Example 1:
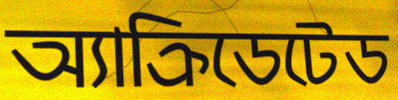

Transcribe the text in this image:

অ্যাক্রিডেটেড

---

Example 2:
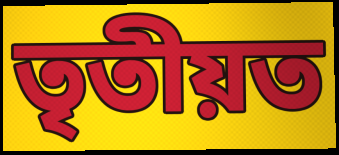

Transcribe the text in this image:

তৃতীয়ত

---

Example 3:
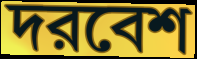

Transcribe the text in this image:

দরবেশ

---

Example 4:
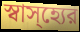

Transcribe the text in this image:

স্বাস্হ্যের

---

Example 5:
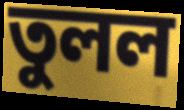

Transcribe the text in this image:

তুলল